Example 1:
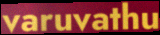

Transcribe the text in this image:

varuvathu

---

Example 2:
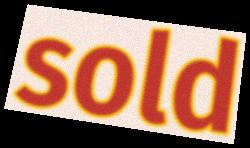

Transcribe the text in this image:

sold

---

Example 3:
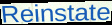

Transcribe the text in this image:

Reinstate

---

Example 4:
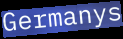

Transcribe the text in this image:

Germanys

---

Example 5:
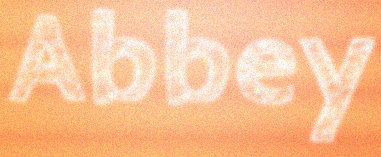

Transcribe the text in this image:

Abbey